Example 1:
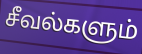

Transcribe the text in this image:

சீவல்களும்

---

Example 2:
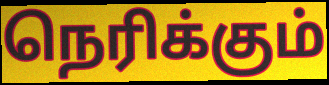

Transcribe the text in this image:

நெரிக்கும்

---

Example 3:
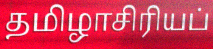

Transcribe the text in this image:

தமிழாசிரியப்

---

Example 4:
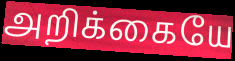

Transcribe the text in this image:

அறிக்கையே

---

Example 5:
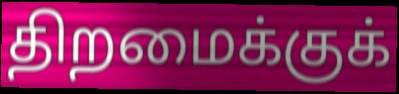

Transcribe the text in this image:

திறமைக்குக்